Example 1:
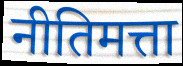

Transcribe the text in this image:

नीतिमत्ता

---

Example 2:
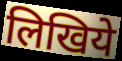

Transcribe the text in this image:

लिखिये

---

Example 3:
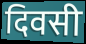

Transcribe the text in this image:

दिवसी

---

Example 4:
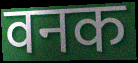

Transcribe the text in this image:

वनक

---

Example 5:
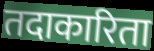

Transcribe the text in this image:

तदाकारिता